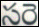
సరె